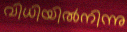
വിധിയിൽനിന്നു